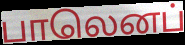
பாலெனப்